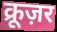
क्रूज़र